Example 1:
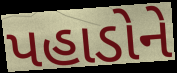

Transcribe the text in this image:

પહાડોને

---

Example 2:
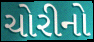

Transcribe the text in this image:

ચોરીનો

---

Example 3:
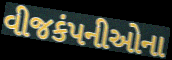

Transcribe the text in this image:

વીજકંપનીઓના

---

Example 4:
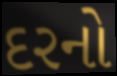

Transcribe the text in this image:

દરનો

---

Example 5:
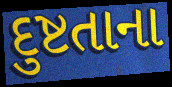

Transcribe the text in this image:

દુષ્ટતાના